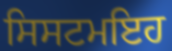
ਸਿਸਟਮਇਹ